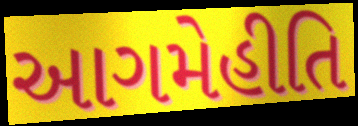
આગમેહીતિ